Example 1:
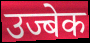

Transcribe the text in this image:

उज्बेक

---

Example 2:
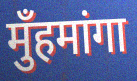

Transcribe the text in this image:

मुँहमांगा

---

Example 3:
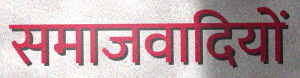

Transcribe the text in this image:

समाजवादियों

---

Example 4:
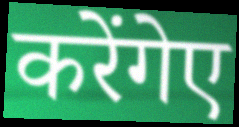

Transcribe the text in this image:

करेंगेए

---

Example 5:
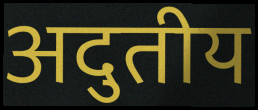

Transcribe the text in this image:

अदुतीय